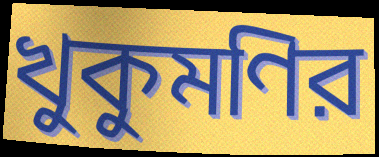
খুকুমণির